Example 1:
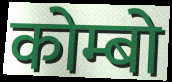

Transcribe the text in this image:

कोम्बो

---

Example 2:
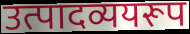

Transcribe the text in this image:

उत्पादव्ययरूप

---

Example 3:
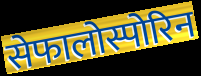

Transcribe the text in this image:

सेफालोस्पोरिन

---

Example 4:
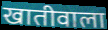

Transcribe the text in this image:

खातीवाला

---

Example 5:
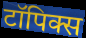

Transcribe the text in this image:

टॉपिक्स